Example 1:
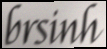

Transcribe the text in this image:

brsinh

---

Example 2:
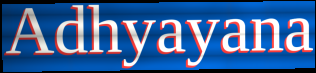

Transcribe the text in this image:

Adhyayana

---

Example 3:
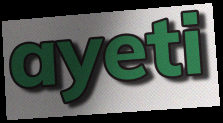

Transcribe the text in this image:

ayeti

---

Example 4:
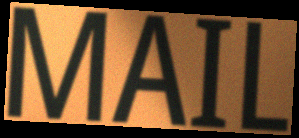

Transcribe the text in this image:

MAIL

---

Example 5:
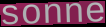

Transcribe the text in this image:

sonne